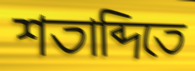
শতাব্দিতে